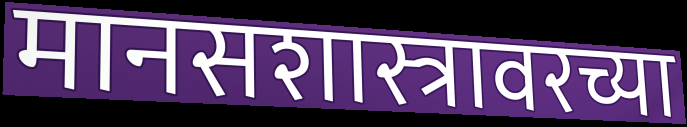
मानसशास्त्रावरच्या